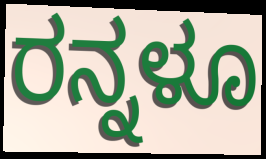
ರನ್ನಳೂ